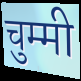
चुम्मी